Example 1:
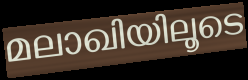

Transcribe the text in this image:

മലാഖിയിലൂടെ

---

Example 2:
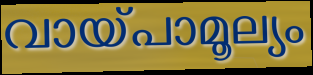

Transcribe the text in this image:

വായ്പാമൂല്യം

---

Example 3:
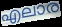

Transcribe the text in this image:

എലാര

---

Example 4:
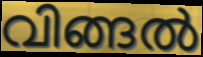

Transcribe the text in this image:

വിങ്ങൽ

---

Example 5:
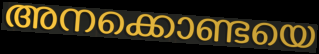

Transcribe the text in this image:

അനക്കൊണ്ടയെ